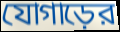
যোগাড়ের